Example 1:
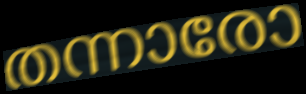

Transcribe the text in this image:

തന്നാരോ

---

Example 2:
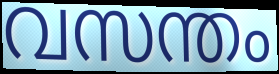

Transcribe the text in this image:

വസന്തം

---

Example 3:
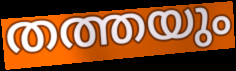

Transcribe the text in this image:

തത്തയും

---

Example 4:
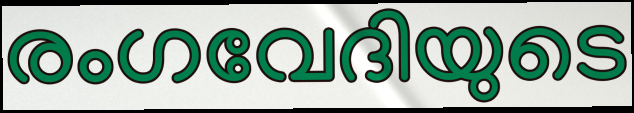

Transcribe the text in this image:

രംഗവേദിയുടെ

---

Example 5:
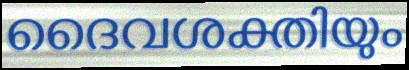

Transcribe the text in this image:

ദൈവശക്തിയും